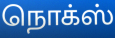
நொக்ஸ்